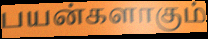
பயன்களாகும்